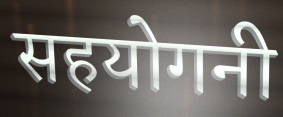
सहयोगनी